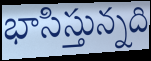
భాసిస్తున్నది